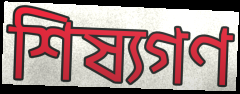
শিষ্যগণ